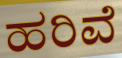
ಹರಿವೆ